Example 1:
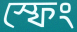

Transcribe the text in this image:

স্ফেং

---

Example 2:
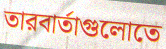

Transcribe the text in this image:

তারবার্তাগুলোতে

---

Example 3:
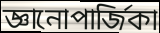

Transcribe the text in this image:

জ্ঞানোপার্জিকা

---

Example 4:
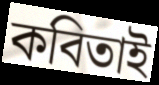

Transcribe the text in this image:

কবিতাই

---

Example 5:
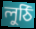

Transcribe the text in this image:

লুঠি